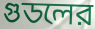
গুডলের